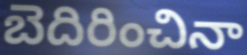
బెదిరించినా